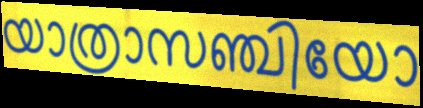
യാത്രാസഞ്ചിയോ